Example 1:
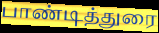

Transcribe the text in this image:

பாண்டித்துரை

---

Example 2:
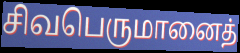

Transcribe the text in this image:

சிவபெருமானைத்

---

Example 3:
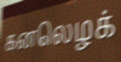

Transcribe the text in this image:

கனலெழக்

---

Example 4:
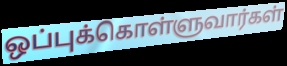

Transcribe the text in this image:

ஒப்புக்கொள்ளுவார்கள்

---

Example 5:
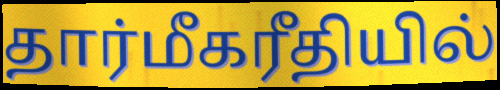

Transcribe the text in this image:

தார்மீகரீதியில்